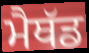
ਮੈਥੱਡ